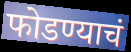
फोडण्याचं